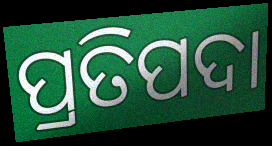
ପ୍ରତିପଦା